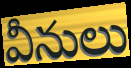
వీనులు